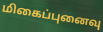
மிகைப்புனைவு